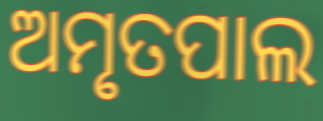
ଅମୃତପାଲ